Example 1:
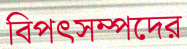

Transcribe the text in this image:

বিপৎসম্পদের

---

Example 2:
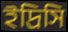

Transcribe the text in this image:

ইদ্রিসি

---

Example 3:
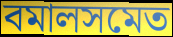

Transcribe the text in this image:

বমালসমেত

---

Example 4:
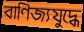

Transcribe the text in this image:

বাণিজ্যযুদ্ধে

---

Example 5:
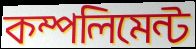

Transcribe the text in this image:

কম্পলিমেন্ট